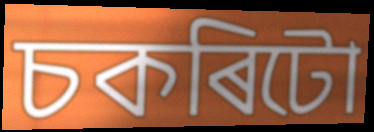
চকৰিটো